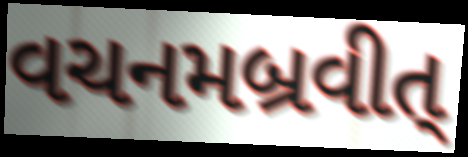
વચનમબ્રવીત્